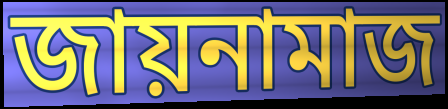
জায়নামাজ